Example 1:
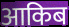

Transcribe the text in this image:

आकिब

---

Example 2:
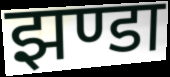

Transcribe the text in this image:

झण्डा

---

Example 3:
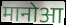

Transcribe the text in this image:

मानोआ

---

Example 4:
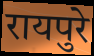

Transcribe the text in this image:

रायपुरे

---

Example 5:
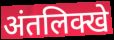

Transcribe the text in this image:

अंतलिक्खे